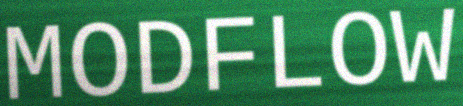
MODFLOW